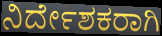
ನಿರ್ದೇಶಕರಾಗಿ